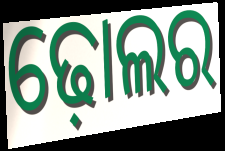
ଢ଼ୋଲର